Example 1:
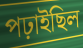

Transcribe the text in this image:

পঢ়াইছিল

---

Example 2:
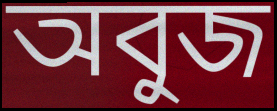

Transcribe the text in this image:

অবুজ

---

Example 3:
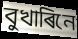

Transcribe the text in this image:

বুখাৰিনে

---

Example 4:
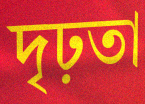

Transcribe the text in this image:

দৃঢ়তা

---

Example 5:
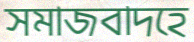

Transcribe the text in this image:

সমাজবাদহে